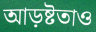
আড়ষ্টতাও